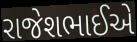
રાજેશભાઈએ